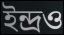
ইন্দ্রও